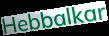
Hebbalkar